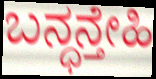
ಬನ್ಧನ್ತೇಹಿ